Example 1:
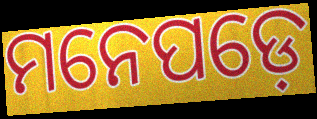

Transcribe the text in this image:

ମନେପଡ଼େ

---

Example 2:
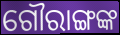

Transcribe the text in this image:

ଗୌରାଙ୍ଗଙ୍କ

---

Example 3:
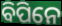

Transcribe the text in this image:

ବିପିନେ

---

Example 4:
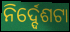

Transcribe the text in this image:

ନିର୍ଦ୍ଦେଶଟା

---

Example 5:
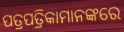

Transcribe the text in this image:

ପତ୍ରପତ୍ରିକାମାନଙ୍କରେ